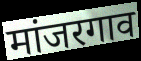
मांजरगाव